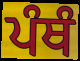
ਪੰਥੰ